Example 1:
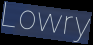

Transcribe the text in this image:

Lowry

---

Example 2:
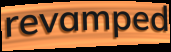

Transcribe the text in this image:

revamped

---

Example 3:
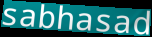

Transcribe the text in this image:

sabhasad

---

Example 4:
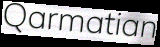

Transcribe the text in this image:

Qarmatian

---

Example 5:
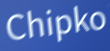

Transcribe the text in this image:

Chipko